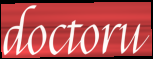
doctoru